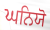
ਘਨਿਯੋ